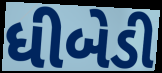
ધીબેડી